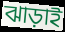
ঝাড়াই